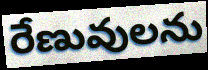
రేణువులను